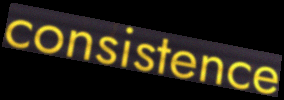
consistence